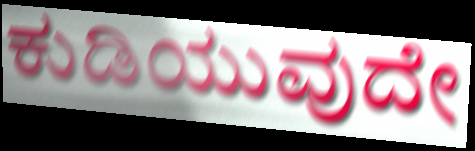
ಕುಡಿಯುವುದೇ